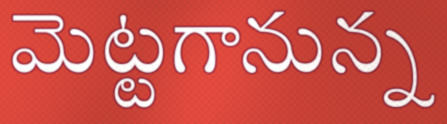
మెట్టగానున్న